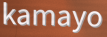
kamayo